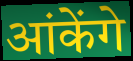
आंकेंगे